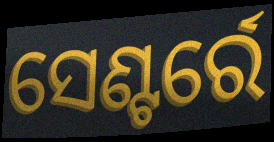
ସେଣ୍ଟର୍ରେ